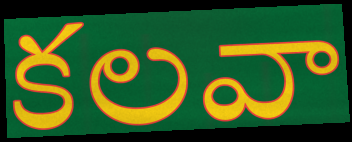
కలవా